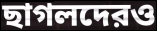
ছাগলদেরও